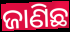
ଜାଣିଛ